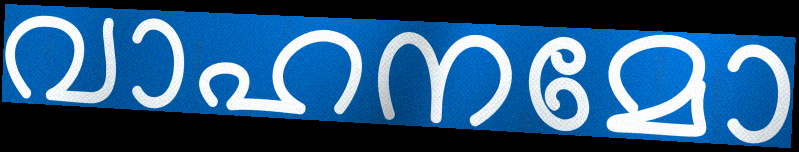
വാഹനമോ